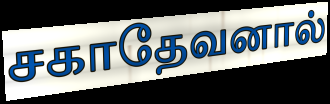
சகாதேவனால்